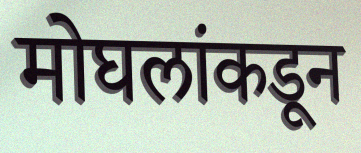
मोघलांकडून